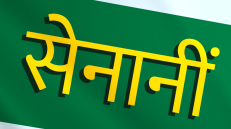
सेनानीं